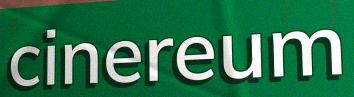
cinereum